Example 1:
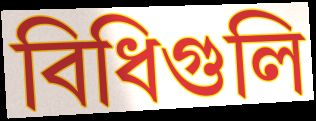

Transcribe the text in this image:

বিধিগুলি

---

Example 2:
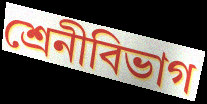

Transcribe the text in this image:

শ্রেনীবিভাগ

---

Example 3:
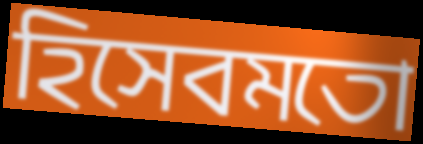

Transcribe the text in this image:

হিসেবমতো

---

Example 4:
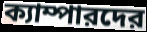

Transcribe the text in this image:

ক্যাম্পারদের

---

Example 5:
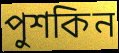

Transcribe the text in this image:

পুশকিন